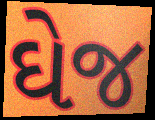
ઘેજ